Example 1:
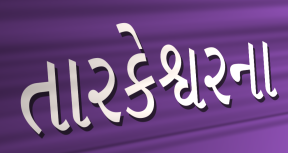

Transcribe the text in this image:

તારકેશ્વરના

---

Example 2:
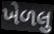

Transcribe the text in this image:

ખેળલુ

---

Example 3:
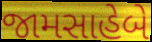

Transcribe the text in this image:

જામસાહેબે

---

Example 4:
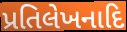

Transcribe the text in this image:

પ્રતિલેખનાદિ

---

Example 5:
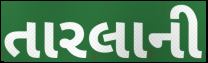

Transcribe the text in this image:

તારલાની